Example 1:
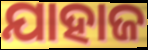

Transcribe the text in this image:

ଯାହାଜ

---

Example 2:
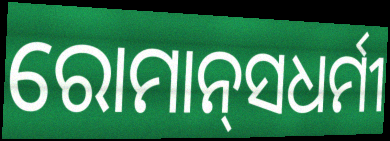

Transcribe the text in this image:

ରୋମାନ୍‍ସଧର୍ମୀ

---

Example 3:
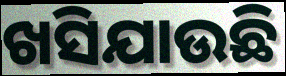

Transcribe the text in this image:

ଖସିଯାଉଛି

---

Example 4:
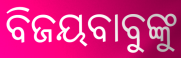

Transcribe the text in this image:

ବିଜୟବାବୁଙ୍କୁ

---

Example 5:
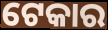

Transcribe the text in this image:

ଟେକାର